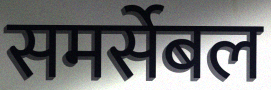
समर्सेबल